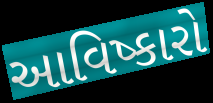
આવિષ્કારો